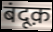
बंदूक़